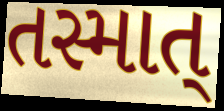
તસ્માત્